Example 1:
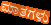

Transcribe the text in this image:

ಮಾತಗಳು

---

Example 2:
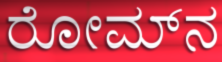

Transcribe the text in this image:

ರೋಮ್‌ನ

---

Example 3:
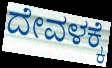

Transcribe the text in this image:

ದೇವಳಕ್ಕೆ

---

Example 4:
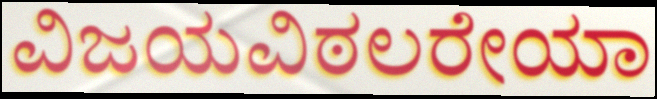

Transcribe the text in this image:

ವಿಜಯವಿಠಲರೇಯಾ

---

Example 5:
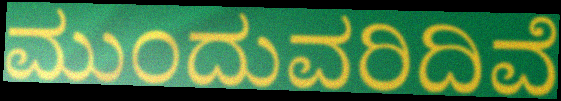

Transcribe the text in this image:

ಮುಂದುವರಿದಿವೆ